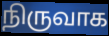
நிருவாக